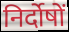
निर्दोषों